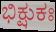
ಭಿಕ್ಷುಕಃ